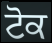
ਟੋਕ